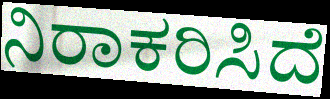
ನಿರಾಕರಿಸಿದೆ